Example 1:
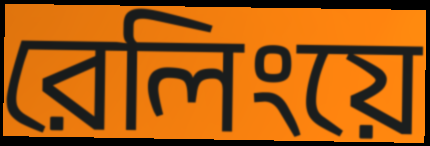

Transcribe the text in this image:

রেলিংয়ে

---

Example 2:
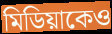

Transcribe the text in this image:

মিডিয়াকেও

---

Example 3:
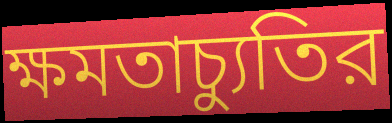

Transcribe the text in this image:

ক্ষমতাচ্যুতির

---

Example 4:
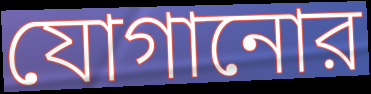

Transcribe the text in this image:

যোগানোর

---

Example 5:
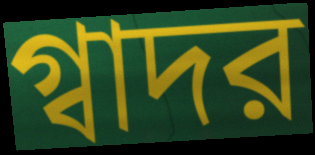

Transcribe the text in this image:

গ্বাদর